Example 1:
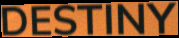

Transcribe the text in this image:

DESTINY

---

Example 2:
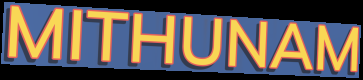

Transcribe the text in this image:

MITHUNAM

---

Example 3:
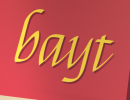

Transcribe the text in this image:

bayt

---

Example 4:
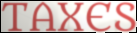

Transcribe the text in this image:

TAXES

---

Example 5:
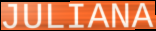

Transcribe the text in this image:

JULIANA